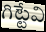
గిట్టేవి